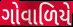
ગોવાળિયે